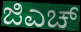
ಜಿಎಚ್